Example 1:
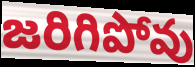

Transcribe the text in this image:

జరిగిపోవు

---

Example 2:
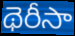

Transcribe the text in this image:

థెరీసా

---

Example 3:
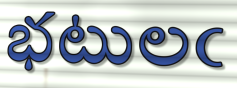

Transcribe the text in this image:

భటులఁ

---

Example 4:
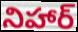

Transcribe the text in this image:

నిహార్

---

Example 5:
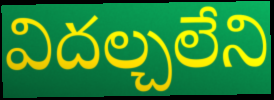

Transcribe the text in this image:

విదల్చలేని